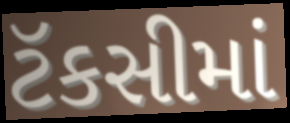
ટૅકસીમાં